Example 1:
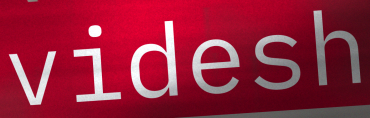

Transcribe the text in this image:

videsh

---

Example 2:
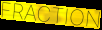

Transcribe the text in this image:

FRACTION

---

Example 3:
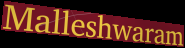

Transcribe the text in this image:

Malleshwaram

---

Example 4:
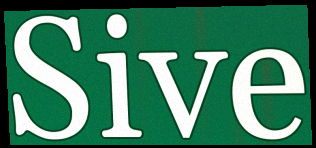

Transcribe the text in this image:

Sive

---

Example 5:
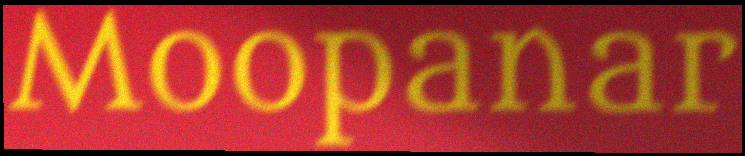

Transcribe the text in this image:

Moopanar